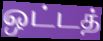
ஒட்டத்